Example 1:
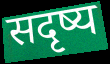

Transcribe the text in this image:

सदृष्य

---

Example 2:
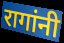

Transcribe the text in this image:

रागांनी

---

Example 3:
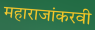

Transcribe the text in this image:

महाराजांकरवी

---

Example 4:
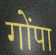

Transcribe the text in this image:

गोंपा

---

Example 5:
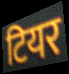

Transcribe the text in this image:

टियर